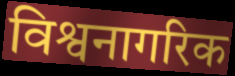
विश्वनागरिक